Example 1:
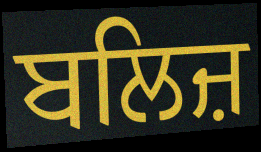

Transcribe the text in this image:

ਬਲਿਜ਼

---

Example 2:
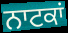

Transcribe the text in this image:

ਨਾਟਕਾਂ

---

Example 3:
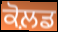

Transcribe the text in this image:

ਕੋਲ਼ਡ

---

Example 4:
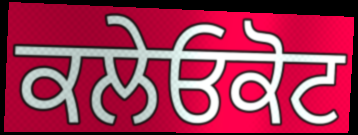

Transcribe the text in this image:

ਕਲੇਓਕੋਟ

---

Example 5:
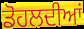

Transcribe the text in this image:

ਡੋਹਲਦੀਆਂ